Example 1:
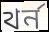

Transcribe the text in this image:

থর্ন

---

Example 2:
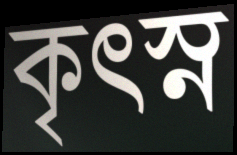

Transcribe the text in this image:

কৃৎস্ন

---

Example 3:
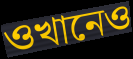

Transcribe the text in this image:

ওখানেও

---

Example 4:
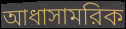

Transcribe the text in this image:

আধাসামরিক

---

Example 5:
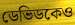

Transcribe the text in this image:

ডেভিডকেও